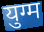
युग्म